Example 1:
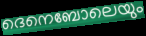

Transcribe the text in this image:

ദെനെബോലെയും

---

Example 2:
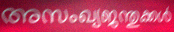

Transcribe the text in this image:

അസംഖ്യജന്തുക്കൾ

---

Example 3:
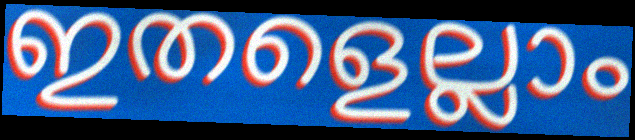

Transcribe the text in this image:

ഇതളെല്ലാം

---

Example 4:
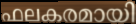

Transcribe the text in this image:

ഫലകരമായി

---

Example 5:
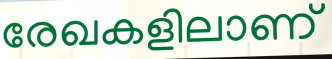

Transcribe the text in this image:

രേഖകളിലാണ്